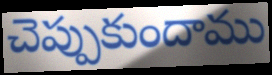
చెప్పుకుందాము